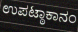
ಉಪಟ್ಠಾಕಾನಂ